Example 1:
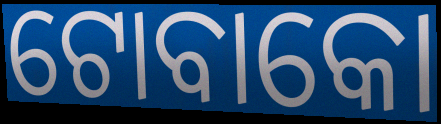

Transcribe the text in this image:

ଟୋବାକୋ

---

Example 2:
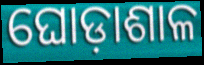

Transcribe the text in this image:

ଘୋଡ଼ାଶାଳ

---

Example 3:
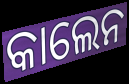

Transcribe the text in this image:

କାଲେନ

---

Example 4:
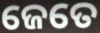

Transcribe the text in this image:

ଜେତେ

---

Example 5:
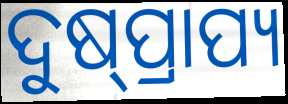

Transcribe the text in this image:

ଦୁଷ୍‌ପ୍ରାପ୍ୟ